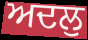
ਅਦਲੁ